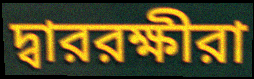
দ্বাররক্ষীরা